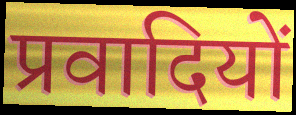
प्रवादियों